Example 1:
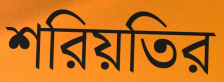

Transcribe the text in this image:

শরিয়তির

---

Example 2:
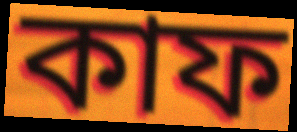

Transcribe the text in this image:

কাফ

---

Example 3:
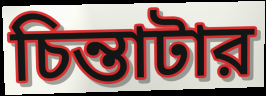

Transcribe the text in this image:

চিন্তাটার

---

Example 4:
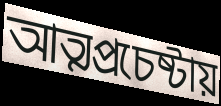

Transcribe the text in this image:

আত্মপ্রচেষ্টায়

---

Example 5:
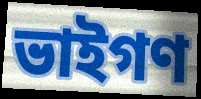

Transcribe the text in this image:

ভাইগণ